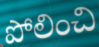
పోలించి